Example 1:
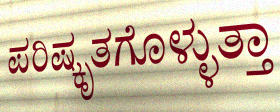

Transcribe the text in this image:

ಪರಿಷ್ಕೃತಗೊಳ್ಳುತ್ತಾ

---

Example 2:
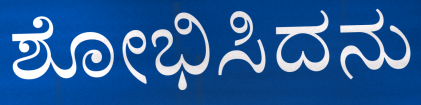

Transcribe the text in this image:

ಶೋಭಿಸಿದನು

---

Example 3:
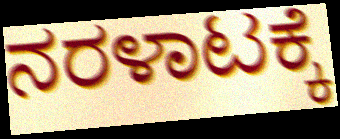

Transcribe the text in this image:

ನರಳಾಟಕ್ಕೆ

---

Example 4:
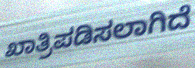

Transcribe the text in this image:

ಖಾತ್ರಿಪಡಿಸಲಾಗಿದೆ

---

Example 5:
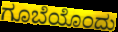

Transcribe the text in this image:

ಗೂಬೆಯೊಂದು